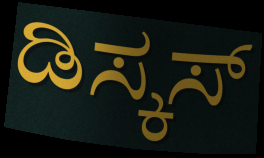
ಡಿಸ್ಕಸ್